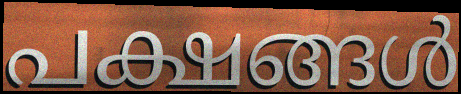
പക്ഷങ്ങൾ